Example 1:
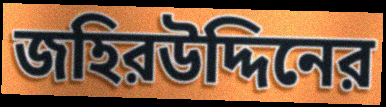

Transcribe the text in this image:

জহিরউদ্দিনের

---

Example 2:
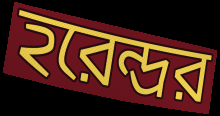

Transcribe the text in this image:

হরেন্দ্রর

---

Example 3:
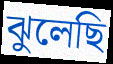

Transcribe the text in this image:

ঝুলেছি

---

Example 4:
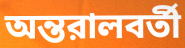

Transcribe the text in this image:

অন্তরালবর্তী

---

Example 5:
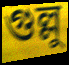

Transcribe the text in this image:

গুল্লু